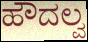
ಹೌದಲ್ವ